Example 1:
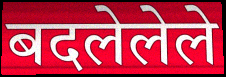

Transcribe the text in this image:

बदलेलेले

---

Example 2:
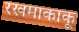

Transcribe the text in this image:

रखमाकाकू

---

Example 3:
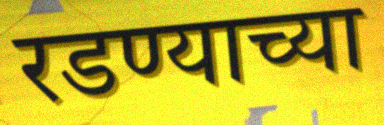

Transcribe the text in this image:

रडण्याच्या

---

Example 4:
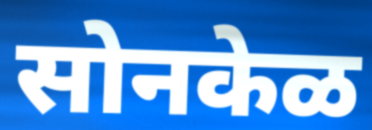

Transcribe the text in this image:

सोनकेळ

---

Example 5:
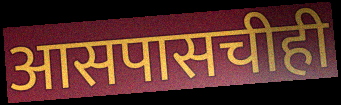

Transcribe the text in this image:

आसपासचीही